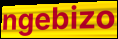
ngebizo